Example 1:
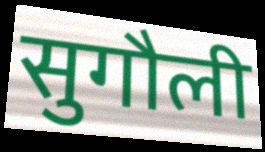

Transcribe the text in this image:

सुगौली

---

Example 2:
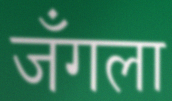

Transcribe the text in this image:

जँगला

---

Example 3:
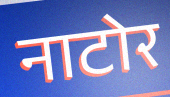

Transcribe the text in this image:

नाटोर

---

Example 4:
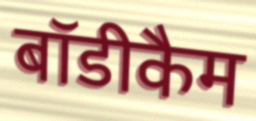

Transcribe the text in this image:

बॉडीकैम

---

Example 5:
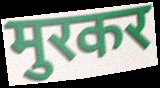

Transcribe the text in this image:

मुरकर